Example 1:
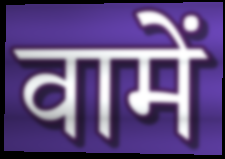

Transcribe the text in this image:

वामें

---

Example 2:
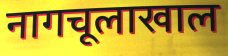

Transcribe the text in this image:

नागचूलाखाल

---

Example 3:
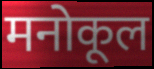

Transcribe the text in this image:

मनोकूल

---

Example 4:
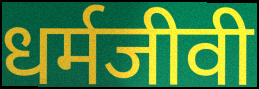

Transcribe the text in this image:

धर्मजीवी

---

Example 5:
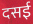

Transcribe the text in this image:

दसई